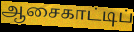
ஆசைகாட்டிப்